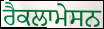
ਰੈਕਲਾਮੇਸਨ